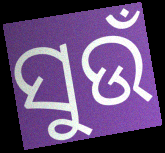
ସୁଉଁ